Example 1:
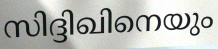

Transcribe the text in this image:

സിദ്ദിഖിനെയും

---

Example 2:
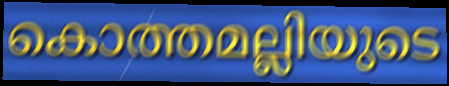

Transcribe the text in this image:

കൊത്തമല്ലിയുടെ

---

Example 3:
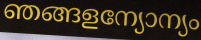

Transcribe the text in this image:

ഞങ്ങളന്യോന്യം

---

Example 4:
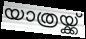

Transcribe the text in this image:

യാത്രയ്ക്ക്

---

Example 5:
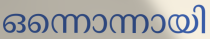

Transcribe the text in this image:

ഒന്നൊന്നായി